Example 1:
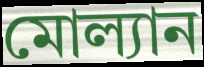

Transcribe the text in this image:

মোল্যান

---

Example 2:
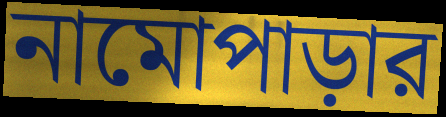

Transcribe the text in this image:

নামোপাড়ার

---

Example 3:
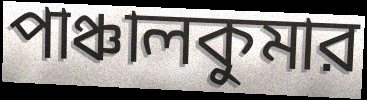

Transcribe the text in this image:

পাঞ্চালকুমার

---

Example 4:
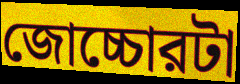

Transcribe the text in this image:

জোচ্চোরটা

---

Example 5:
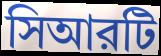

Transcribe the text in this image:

সিআরটি